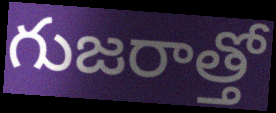
గుజరాత్తో